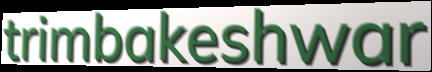
trimbakeshwar